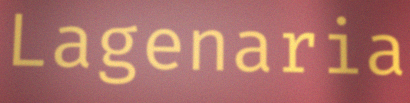
Lagenaria